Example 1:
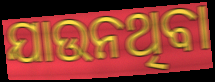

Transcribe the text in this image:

ଯାଉନଥିବା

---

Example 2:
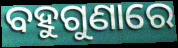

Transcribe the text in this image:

ବହୁଗୁଣାରେ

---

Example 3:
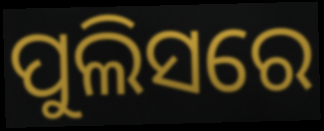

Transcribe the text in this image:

ପୁଲିସରେ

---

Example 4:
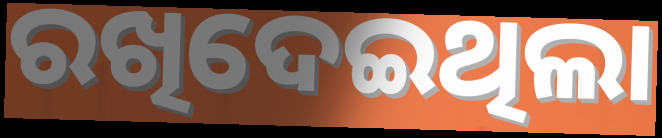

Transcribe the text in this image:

ରଖିଦେଇଥିଲା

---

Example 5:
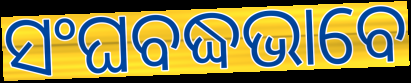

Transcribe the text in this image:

ସଂଘବଦ୍ଧଭାବେ